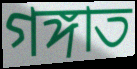
গঙ্গাত